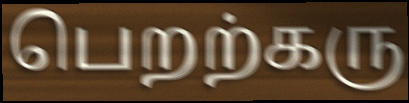
பெறற்கரு